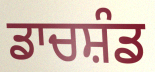
ਡਾਚਸ਼ੰਡ